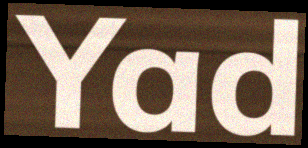
Yad